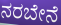
ನರಬೇನೆ